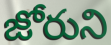
జోరుని